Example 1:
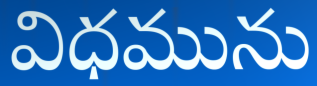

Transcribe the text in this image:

విధమును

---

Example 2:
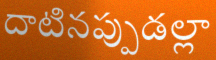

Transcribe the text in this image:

దాటినప్పుడల్లా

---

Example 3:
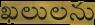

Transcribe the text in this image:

ఖలులను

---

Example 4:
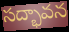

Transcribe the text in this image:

సద్భావన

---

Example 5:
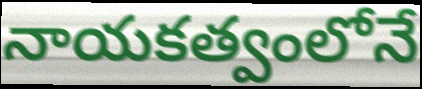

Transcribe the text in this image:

నాయకత్వంలోనే